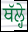
ਥੱਲ੍ਹੇ